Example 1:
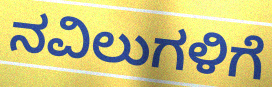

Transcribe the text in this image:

ನವಿಲುಗಳಿಗೆ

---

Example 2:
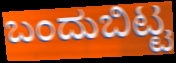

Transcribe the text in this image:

ಬಂದುಬಿಟ್ಟ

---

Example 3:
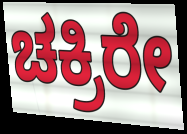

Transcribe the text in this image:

ಚಕ್ರಿರೇ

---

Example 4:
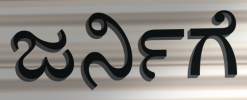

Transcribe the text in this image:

ಜರ್ನಿಗೆ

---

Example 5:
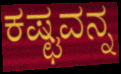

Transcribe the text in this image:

ಕಷ್ಟವನ್ನ